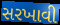
સરખાવી